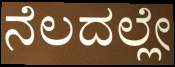
ನೆಲದಲ್ಲೇ